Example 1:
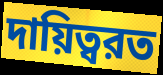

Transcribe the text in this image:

দায়িত্বরত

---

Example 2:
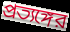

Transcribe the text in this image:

প্রত্যঙ্গের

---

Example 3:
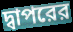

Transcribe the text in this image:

দ্বাপরের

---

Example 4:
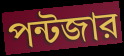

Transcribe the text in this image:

পন্টজার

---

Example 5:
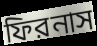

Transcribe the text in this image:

ফিরনাস